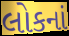
લોકનાં